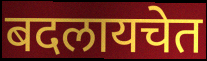
बदलायचेत